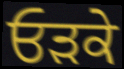
ਓੜਕੇ